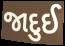
જાદુઈ